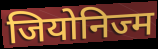
जियोनिज्म